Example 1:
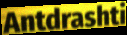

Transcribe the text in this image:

Antdrashti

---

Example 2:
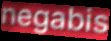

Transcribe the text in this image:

negabis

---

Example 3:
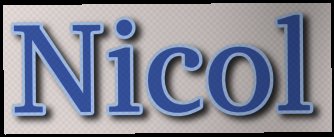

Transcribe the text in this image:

Nicol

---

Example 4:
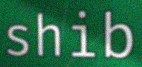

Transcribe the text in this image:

shib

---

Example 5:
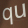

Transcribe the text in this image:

qu